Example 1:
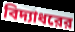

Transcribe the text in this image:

বিদ্যাধরের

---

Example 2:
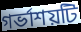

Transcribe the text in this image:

গর্ভাশয়টি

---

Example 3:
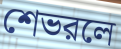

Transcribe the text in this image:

শেভরলে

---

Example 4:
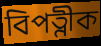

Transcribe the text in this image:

বিপত্নীক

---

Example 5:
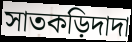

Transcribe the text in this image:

সাতকড়িদাদা